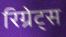
रिग्रेट्स